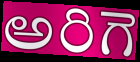
అరిగె